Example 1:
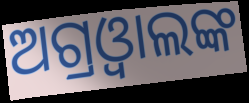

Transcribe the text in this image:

ଅଗ୍ରଓ୍ବାଲଙ୍କ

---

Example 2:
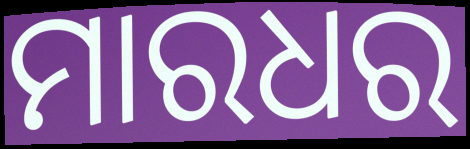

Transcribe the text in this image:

ମାରଧର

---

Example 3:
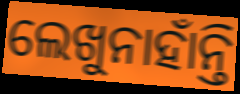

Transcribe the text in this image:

ଲେଖୁନାହାଁନ୍ତି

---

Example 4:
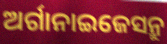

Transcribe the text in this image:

ଅର୍ଗାନାଇଜେସନ୍ରୁ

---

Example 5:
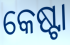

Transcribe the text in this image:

କେଷ୍ଟା